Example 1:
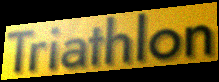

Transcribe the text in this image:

Triathlon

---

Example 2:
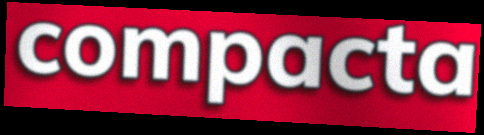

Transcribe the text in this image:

compacta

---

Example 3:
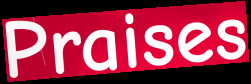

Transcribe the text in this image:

Praises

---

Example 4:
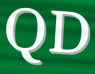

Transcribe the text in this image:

QD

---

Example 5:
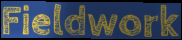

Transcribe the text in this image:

Fieldwork